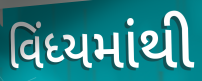
વિંધ્યમાંથી